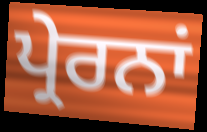
ਪ੍ਰੇਰਨਾਂ